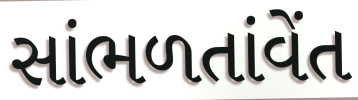
સાંભળતાંવેંત